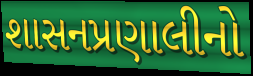
શાસનપ્રણાલીનો